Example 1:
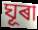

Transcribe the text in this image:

ঘূৰা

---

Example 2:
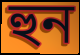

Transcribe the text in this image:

হুন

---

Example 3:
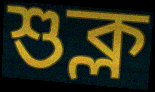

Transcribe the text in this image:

শুক্ল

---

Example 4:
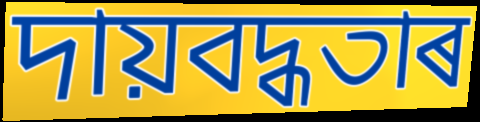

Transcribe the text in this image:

দায়বদ্ধতাৰ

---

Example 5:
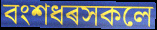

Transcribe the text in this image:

বংশধৰসকলে